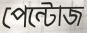
পেন্টোজ